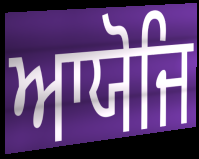
ਆਯੋਜਿ